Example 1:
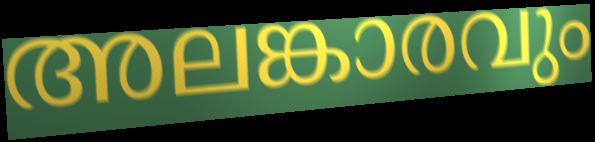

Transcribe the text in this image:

അലങ്കാരവും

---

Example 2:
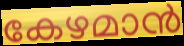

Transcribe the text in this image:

കേഴമാൻ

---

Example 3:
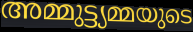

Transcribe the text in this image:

അമ്മുട്ട്യമ്മയുടെ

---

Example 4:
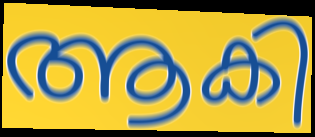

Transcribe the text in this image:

ആകി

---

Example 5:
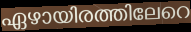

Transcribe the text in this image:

ഏഴായിരത്തിലേറെ